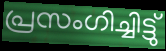
പ്രസംഗിച്ചിട്ടു്